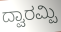
ದ್ವಾರಮ್ಪಿ